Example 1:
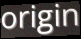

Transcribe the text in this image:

origin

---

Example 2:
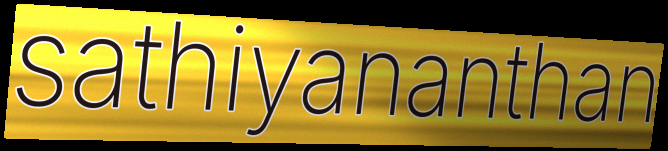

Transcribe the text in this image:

sathiyananthan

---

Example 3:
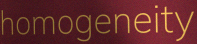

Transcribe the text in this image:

homogeneity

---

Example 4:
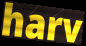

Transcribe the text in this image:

harv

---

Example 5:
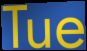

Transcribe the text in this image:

Tue